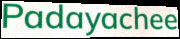
Padayachee